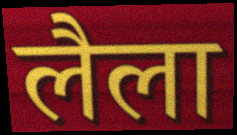
लैला